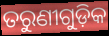
ତରୁଣୀଗୁଡ଼ିକ